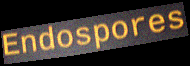
Endospores